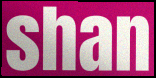
shan